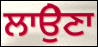
ਲਾਉੇਣਾ